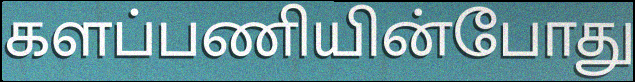
களப்பணியின்போது